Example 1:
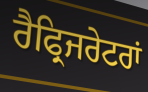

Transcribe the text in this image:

ਰੈਫ੍ਰਿਜਰੇਟਰਾਂ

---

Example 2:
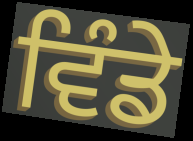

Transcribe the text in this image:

ਵਿੰਡੇ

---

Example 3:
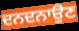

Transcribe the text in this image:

ਦਨਦਨਾਉਣ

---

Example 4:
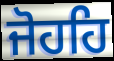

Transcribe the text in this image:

ਜੋਹਹਿ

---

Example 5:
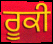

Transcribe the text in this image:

ਰੂਕੀ